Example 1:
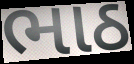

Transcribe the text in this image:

ભાઠ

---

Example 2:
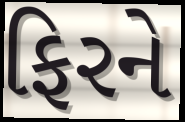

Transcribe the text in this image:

ફિરને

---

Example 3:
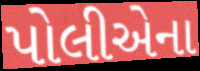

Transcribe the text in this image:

પોલીએના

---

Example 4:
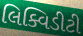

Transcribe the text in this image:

લિક્વિડીટી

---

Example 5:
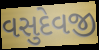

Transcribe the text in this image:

વસુદેવજી